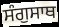
ਸੰਗੁਸਾਥ